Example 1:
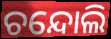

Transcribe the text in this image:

ଚନ୍ଦୋଲି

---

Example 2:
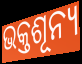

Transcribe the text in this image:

ଭକ୍ତଶୂନ୍ୟ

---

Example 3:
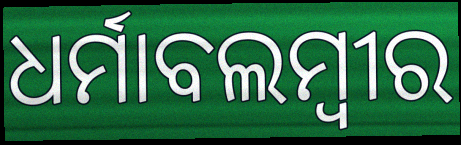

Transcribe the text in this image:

ଧର୍ମାବଲମ୍ବୀର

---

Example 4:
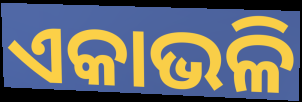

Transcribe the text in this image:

ଏକାଭଳି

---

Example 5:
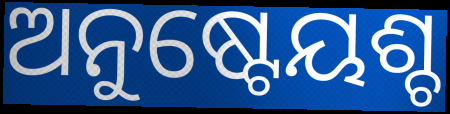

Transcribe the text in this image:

ଅନୁଷ୍ଟେୟଶ୍ଚ